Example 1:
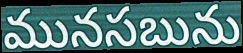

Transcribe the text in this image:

మునసబును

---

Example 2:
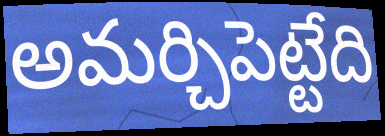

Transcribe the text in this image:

అమర్చిపెట్టేది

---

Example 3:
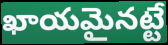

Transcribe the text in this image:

ఖాయమైనట్టే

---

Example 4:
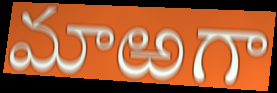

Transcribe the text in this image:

మాఱగా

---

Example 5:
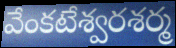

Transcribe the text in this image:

వేంకటేశ్వరశర్మ